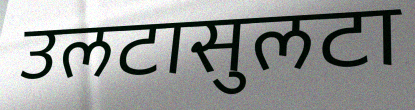
उलटासुलटा